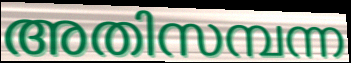
അതിസമ്പന്ന